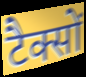
टैक्सों